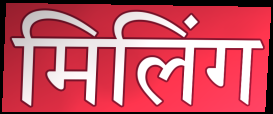
मिलिंग